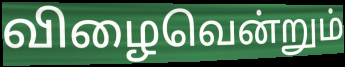
விழைவென்றும்